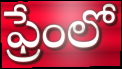
ఫ్రేంలో